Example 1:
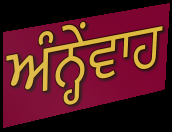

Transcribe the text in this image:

ਅੰਨ੍ਹੇਂਵਾਹ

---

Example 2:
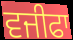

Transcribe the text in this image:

ਵਜੀਫਾ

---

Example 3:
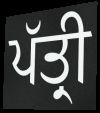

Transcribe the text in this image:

ਪੱਤ੍ਰੀ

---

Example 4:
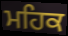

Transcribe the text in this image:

ਮਹਿਕ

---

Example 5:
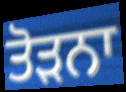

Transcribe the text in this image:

ਤੋੜਨਾ